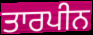
ਤਾਰਪੀਨ